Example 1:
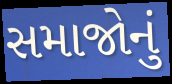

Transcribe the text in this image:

સમાજોનું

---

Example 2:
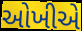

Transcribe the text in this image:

ઓખીએ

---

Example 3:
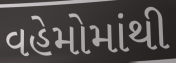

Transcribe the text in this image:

વહેમોમાંથી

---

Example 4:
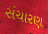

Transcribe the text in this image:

સંચારણ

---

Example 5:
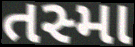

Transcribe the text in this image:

તસ્મા